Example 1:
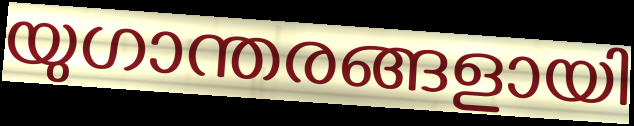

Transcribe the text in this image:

യുഗാന്തരങ്ങളായി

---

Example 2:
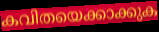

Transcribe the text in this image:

കവിതയെക്കാക്കുക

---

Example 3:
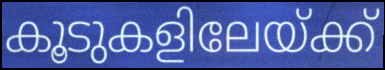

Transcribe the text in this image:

കൂടുകളിലേയ്ക്ക്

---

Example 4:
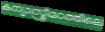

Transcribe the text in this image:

കന്യാസ്ത്രീമഠത്തിലെ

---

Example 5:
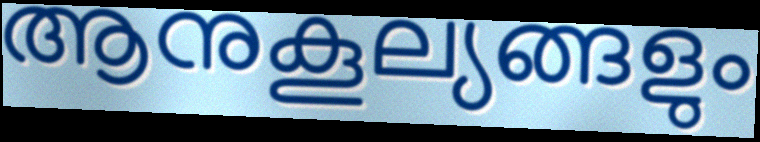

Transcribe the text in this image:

ആനുകൂല്യങ്ങളും